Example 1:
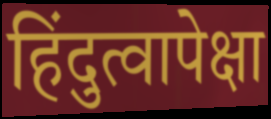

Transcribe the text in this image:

हिंदुत्वापेक्षा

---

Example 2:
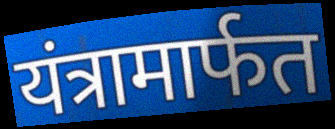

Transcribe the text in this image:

यंत्रामार्फत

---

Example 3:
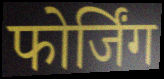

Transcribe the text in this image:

फोर्जिंग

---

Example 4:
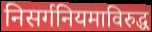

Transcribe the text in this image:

निसर्गनियमाविरुद्ध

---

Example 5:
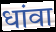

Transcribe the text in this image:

धांवा